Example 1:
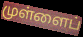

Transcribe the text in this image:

முள்ளைப்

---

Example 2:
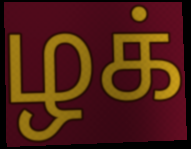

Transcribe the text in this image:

ழக்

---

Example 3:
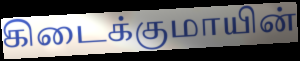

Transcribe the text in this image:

கிடைக்குமாயின்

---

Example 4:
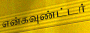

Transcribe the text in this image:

என்கவுண்ட்டர்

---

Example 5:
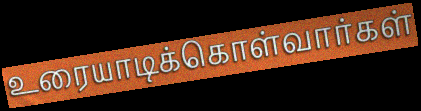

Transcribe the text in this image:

உரையாடிக்கொள்வார்கள்